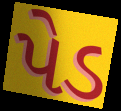
પેડ